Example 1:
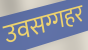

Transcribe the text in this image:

उवसग्गहर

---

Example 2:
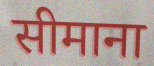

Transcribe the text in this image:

सीमाना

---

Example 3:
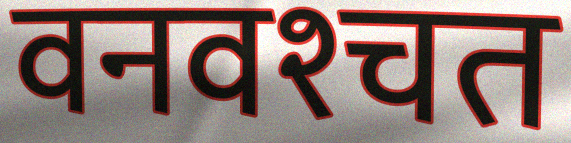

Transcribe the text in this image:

वनवश्चत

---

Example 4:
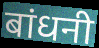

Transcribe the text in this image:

बांधनी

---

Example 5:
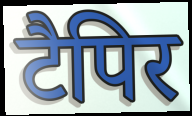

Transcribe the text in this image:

टैपिर